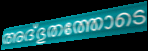
അദ്ഭുതത്തോടെ